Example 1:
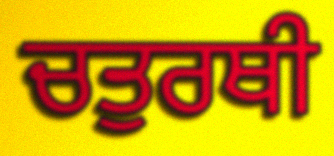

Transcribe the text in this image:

ਚਤੁਰਥੀ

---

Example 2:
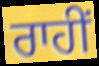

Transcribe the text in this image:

ਰਾਹੀਂ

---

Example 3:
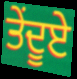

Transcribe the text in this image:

ਤੇਂਦੂਏ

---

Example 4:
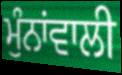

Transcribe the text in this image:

ਮੁੰਨਾਂਵਾਲੀ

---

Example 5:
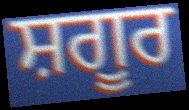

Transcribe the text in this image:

ਸ਼ਗੂਰ